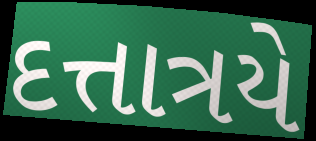
દત્તાત્રયે